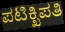
ಪಟಿಕ್ಖಿಪತಿ